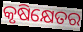
କୃଷିକ୍ଷେତର